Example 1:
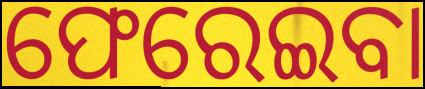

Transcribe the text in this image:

ଫେରେଇବା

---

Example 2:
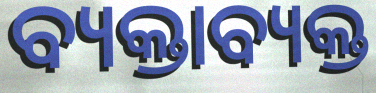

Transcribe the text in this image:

ବ୍ୟକ୍ତାବ୍ୟକ୍ତ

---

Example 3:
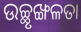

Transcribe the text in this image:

ଉଚ୍ଛୃଙ୍ଖଳତା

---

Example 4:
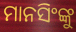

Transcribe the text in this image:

ମାନସିଂଙ୍କୁ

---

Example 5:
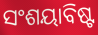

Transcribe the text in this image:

ସଂଶୟାବିଷ୍ଟ